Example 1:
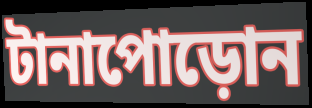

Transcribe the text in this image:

টানাপোড়োন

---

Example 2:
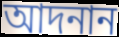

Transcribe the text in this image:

আদনান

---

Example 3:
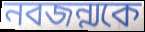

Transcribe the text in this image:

নবজন্মকে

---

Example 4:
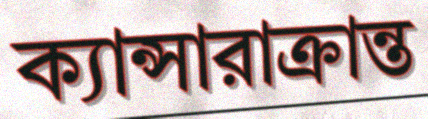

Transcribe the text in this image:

ক্যান্সারাক্রান্ত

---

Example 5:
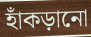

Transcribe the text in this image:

হাঁকড়ানো